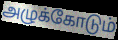
அழுக்கோடும்